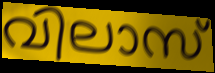
വിലാസ്